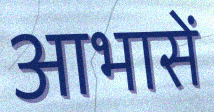
आभासें